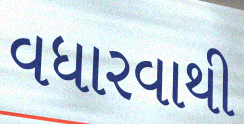
વધારવાથી